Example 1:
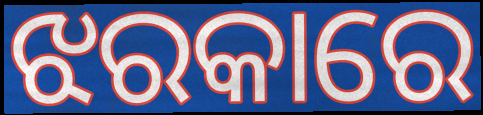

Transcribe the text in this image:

ଝରକାରେ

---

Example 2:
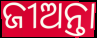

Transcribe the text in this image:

ଜୀଅନ୍ତା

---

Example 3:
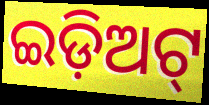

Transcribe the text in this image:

ଇଡ଼ିଅଟ୍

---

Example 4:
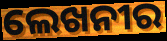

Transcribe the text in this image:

ଲେଖନୀର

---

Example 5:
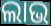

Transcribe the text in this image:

ଲାଭ